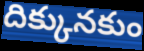
దిక్కునకుం